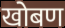
खोबण